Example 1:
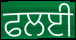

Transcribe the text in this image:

ਫਲਈ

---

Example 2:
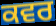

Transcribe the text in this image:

ਕਵਰ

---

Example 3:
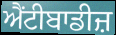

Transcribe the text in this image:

ਐਂਟੀਬਾਡੀਜ਼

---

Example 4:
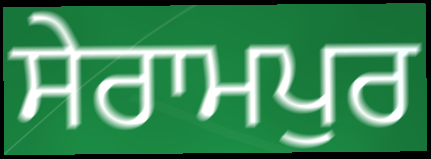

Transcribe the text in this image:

ਸੇਰਾਮਪੁਰ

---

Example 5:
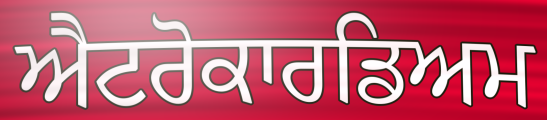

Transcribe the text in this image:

ਐਟਰੋਕਾਰਡਿਅਮ